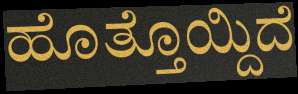
ಹೊತ್ತೊಯ್ದಿದೆ